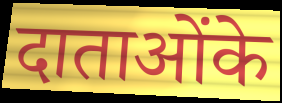
दाताओंके